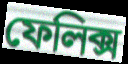
ফেলিক্স